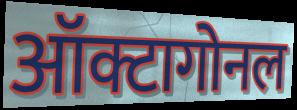
ऑक्टागोनल